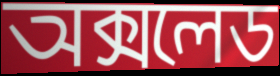
অক্সলেড